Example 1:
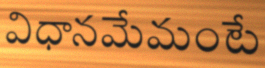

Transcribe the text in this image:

విధానమేమంటే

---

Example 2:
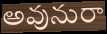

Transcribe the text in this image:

అవునురా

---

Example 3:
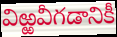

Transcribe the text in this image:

విఱ్ఱవీగడానికీ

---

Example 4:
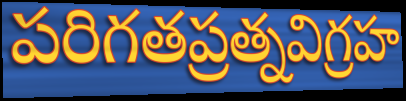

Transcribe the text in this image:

పరిగతప్రత్నవిగ్రహ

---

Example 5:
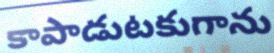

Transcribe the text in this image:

కాపాడుటకుగాను